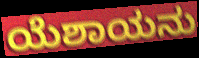
ಯೆಶಾಯನು